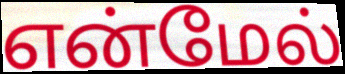
என்மேல்